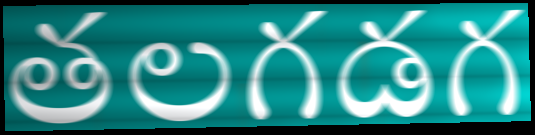
తలగడగ